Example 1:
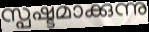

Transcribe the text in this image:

സ്പഷ്ടമാക്കുന്നു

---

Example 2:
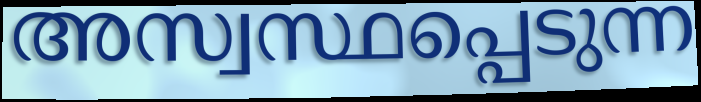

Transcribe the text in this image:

അസ്വസ്ഥപ്പെടുന്ന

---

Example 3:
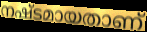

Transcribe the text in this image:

നഷ്ടമായതാണ്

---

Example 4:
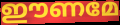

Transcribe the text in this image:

ഈണമേ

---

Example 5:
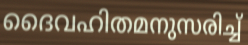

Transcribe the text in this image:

ദൈവഹിതമനുസരിച്ച്